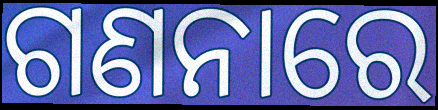
ଗଣନାରେ